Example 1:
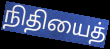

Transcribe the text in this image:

நிதியைத்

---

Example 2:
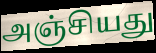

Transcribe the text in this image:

அஞ்சியது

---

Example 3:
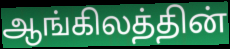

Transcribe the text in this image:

ஆங்கிலத்தின்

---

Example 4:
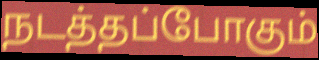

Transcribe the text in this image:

நடத்தப்போகும்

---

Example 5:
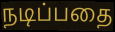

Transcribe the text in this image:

நடிப்பதை